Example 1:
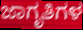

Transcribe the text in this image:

ಜಾಗೃತಿಗಳ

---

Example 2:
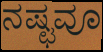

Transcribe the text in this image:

ನಷ್ಟವೂ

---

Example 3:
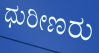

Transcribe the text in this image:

ಧುರೀಣರು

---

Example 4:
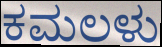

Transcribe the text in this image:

ಕಮಲಳು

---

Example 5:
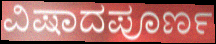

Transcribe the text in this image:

ವಿಷಾದಪೂರ್ಣ